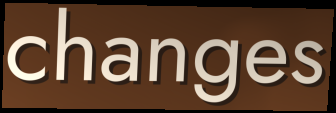
changes